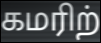
கமரிற்